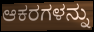
ಆಕರಗಳನ್ನು